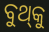
ବୁଥ୍‌କୁ